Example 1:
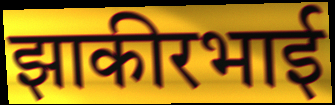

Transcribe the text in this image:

झाकीरभाई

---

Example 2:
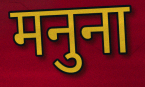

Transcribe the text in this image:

मनुना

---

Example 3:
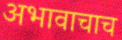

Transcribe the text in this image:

अभावाचाच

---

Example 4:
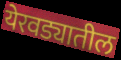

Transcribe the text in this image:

येरवड्यातील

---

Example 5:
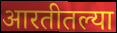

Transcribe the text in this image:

आरतीतल्या